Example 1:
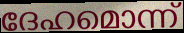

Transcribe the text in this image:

ദേഹമൊന്ന്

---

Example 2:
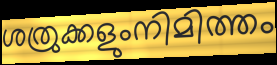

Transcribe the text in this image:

ശത്രുക്കളുംനിമിത്തം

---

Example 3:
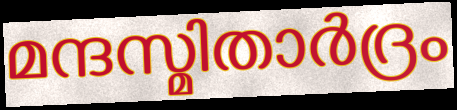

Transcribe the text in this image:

മന്ദസ്മിതാർദ്രം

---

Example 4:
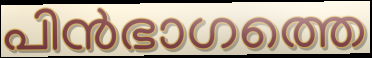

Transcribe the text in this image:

പിൻഭാഗത്തെ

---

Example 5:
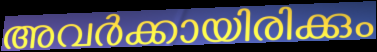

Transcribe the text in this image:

അവർക്കായിരിക്കും